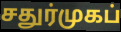
சதுர்முகப்